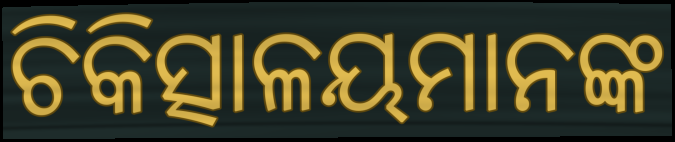
ଚିକିତ୍ସାଳୟମାନଙ୍କ